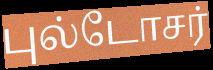
புல்டோசர்